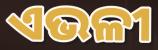
ଏଭଳୀ